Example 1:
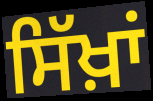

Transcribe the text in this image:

ਸਿੱਖ਼ਾਂ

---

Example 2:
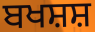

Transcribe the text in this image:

ਬਖਸ਼ਸ਼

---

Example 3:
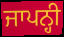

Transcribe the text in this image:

ਜਾਪਨ੍ਹੀ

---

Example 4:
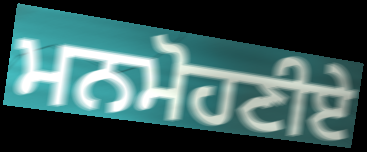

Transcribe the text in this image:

ਮਨਮੋਹਣੀਏ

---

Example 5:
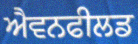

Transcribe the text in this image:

ਐਵਨਫੀਲਡ